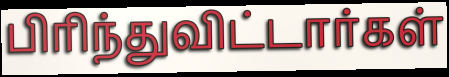
பிரிந்துவிட்டார்கள்